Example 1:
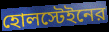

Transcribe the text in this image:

হোলস্টেইনের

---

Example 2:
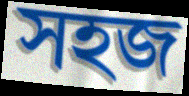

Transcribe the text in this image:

সহজ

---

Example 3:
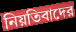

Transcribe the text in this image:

নিয়তিবাদের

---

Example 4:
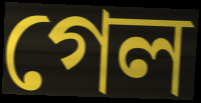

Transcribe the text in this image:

গেল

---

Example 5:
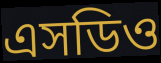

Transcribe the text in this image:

এসডিও